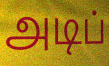
அடிப்